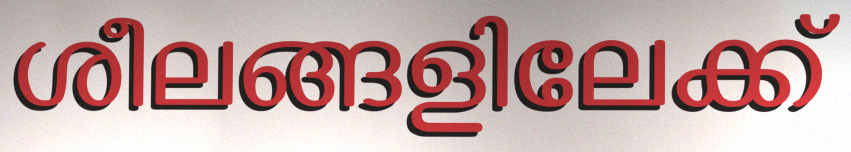
ശീലങ്ങളിലേക്ക്